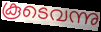
കൂടെവന്നു